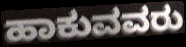
ಹಾಕುವವರು